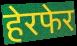
हेरफेर